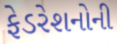
ફેડરેશનોની